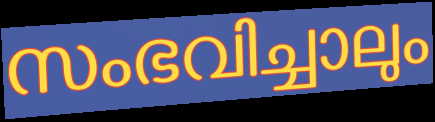
സംഭവിച്ചാലും